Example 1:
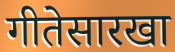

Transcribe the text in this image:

गीतेसारखा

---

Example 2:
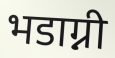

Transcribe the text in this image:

भडाग्नी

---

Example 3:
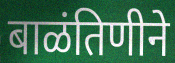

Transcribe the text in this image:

बाळंतिणीने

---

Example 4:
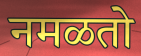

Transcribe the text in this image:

नमळतो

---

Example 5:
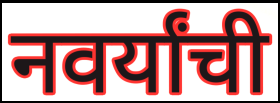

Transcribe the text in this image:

नवर्यांची